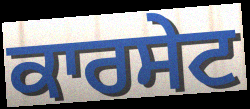
ਕਾਰਸੇਟ